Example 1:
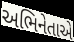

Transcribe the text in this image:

અભિનેતાએ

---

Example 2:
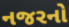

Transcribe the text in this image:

નજરનો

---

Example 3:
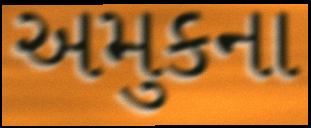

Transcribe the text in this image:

અમુકના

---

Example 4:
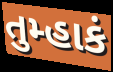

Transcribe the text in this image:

તુમ્હાકં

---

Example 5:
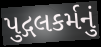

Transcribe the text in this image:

પુદ્ગલકર્મનું